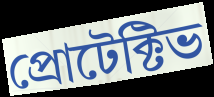
প্রোটেক্টিভ